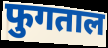
फुगताल